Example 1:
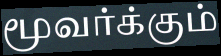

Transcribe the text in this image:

மூவர்க்கும்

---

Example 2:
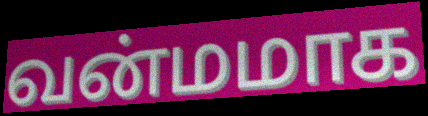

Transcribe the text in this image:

வன்மமாக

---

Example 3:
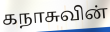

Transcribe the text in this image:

கநாசுவின்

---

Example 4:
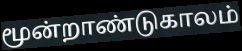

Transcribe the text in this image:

மூன்றாண்டுகாலம்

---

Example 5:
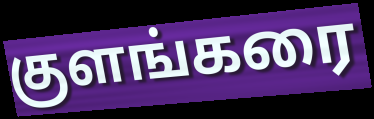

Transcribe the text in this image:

குளங்கரை